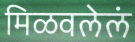
मिळवलेलं